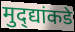
मुद्द्यांकडे